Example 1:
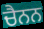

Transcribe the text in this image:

ਚੈਨਨ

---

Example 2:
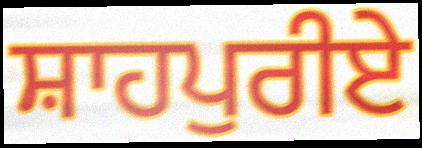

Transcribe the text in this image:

ਸ਼ਾਹਪੁਰੀਏ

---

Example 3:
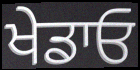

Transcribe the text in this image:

ਖੇਡਾਓ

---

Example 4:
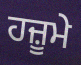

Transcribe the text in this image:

ਹਜ਼ੂਮੇ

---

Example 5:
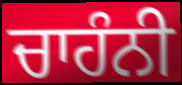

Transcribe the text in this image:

ਚਾਹੰਨੀ